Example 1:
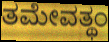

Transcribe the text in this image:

ತಮೇವತ್ಥಂ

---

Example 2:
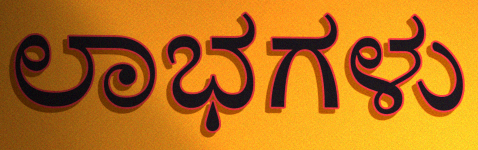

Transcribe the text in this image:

ಲಾಭಗಳು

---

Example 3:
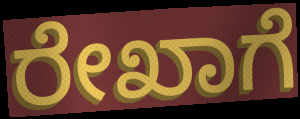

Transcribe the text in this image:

ರೇಖಾಗೆ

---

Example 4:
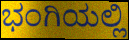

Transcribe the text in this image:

ಭಂಗಿಯಲ್ಲಿ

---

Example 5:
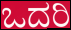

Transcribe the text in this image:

ಒದರಿ